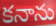
కనాను